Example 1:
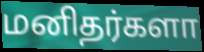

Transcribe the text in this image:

மனிதர்களா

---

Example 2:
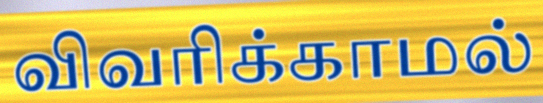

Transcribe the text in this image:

விவரிக்காமல்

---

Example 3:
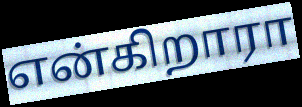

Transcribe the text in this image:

என்கிறாரா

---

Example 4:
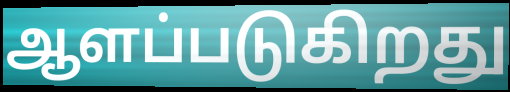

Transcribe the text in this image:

ஆளப்படுகிறது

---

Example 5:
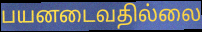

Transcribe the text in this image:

பயனடைவதில்லை